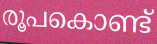
രൂപകൊണ്ട്